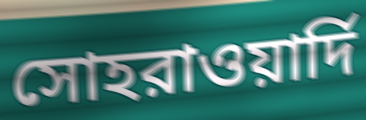
সোহরাওয়ার্দি